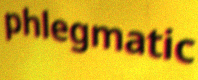
phlegmatic